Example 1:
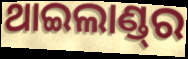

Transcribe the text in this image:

ଥାଇଲାଣ୍ଡ୍‌ର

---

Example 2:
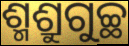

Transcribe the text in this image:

ଶ୍ମଶ୍ରୁଗୁଚ୍ଛ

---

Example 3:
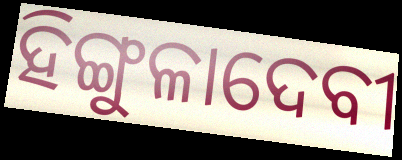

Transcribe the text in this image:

ହିଙ୍ଗୁଳାଦେବୀ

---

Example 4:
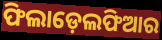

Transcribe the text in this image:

ଫିଲାଡ଼େଲଫିଆର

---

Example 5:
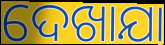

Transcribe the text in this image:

ଦେଖାଯା